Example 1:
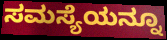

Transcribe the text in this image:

ಸಮಸ್ಯೆಯನ್ನೂ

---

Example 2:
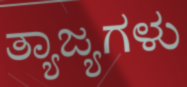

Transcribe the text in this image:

ತ್ಯಾಜ್ಯಗಳು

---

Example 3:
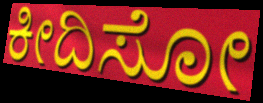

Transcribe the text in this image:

ಕೀದಿಸೋ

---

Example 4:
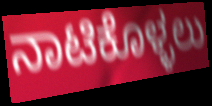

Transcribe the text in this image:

ನಾಟಿಕೊಳ್ಳಲು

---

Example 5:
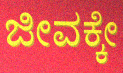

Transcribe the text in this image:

ಜೀವಕ್ಕೇ